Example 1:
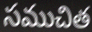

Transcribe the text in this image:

సముచిత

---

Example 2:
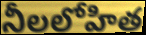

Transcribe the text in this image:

నీలలోహిత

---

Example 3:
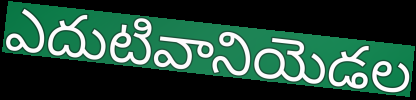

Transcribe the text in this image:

ఎదుటివానియెడల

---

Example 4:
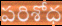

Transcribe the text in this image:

పరిశోధ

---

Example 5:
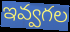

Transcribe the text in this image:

ఇవ్వగల